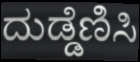
ದುಡ್ಡೆಣಿಸಿ